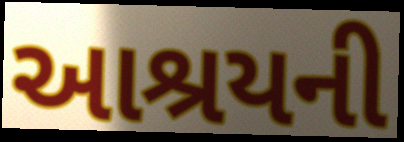
આશ્રયની